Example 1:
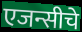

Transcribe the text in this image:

एजन्सीचे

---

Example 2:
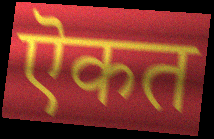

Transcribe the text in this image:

ऎकत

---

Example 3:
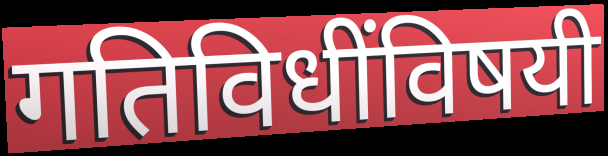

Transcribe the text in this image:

गतिविधींविषयी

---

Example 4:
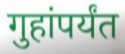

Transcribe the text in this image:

गुहांपर्यंत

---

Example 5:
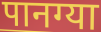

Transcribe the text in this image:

पानग्या